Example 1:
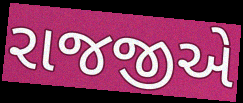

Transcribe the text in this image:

રાજજીએ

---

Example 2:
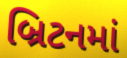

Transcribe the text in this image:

બ્રિટનમાં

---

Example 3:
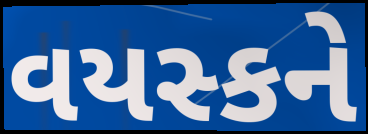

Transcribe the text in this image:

વયસ્કને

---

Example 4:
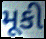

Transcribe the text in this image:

મૂકી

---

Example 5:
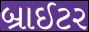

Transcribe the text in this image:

બ્રાઈટર